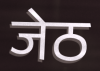
जेठ